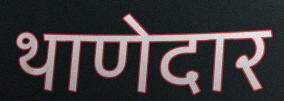
थाणेदार